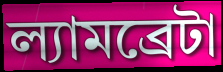
ল্যামব্রেটা